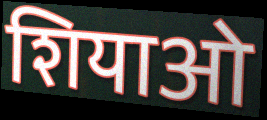
शियाओ